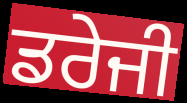
ਡਰੇਜੀ